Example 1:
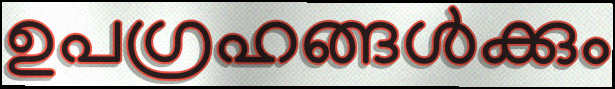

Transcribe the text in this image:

ഉപഗ്രഹങ്ങൾക്കും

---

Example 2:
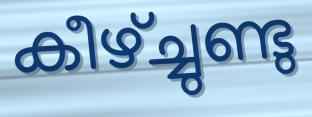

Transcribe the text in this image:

കീഴ്ച്ചുണ്ടു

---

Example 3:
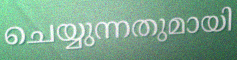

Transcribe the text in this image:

ചെയ്യുന്നതുമായി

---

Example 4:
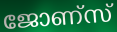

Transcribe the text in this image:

ജോണ്സ്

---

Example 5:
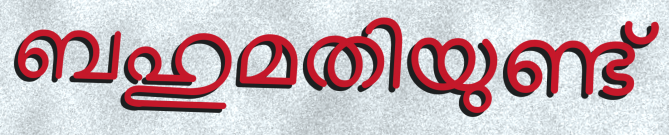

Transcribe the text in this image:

ബഹുമതിയുണ്ട്